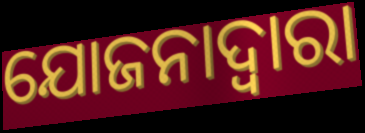
ଯୋଜନାଦ୍ବାରା